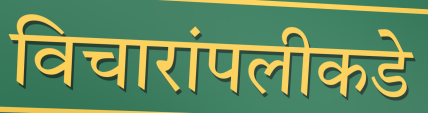
विचारांपलीकडे